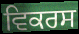
ਵਿਕਰਸ